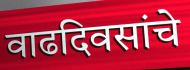
वाढदिवसांचे